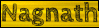
Nagnath